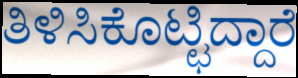
ತಿಳಿಸಿಕೊಟ್ಟಿದ್ದಾರೆ